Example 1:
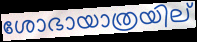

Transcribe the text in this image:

ശോഭായാത്രയില്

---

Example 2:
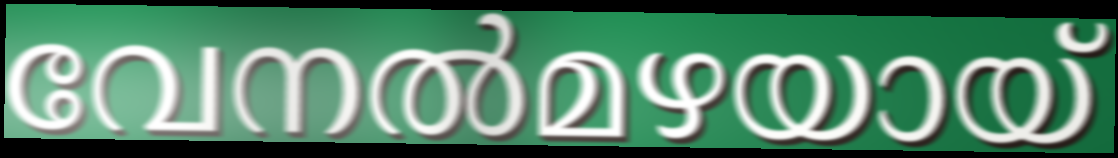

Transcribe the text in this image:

വേനൽമഴയായ്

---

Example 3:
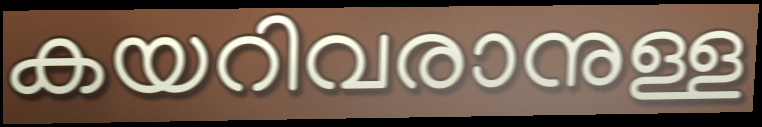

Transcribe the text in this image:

കയറിവരാനുള്ള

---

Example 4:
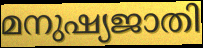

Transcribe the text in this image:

മനുഷ്യജാതി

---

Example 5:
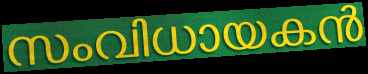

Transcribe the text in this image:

സംവിധായകൻ